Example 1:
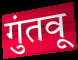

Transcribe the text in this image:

गुंतवू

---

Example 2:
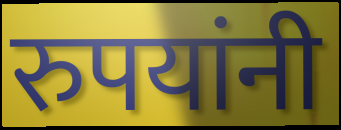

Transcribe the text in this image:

रुपयांनी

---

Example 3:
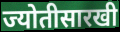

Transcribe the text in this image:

ज्योतीसारखी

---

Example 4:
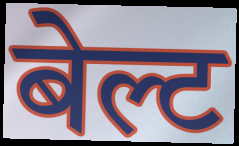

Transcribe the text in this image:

बेल्ट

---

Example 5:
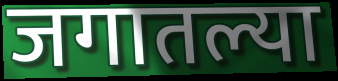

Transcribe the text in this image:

जगातल्या